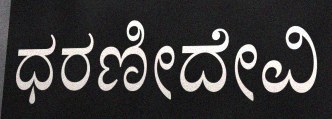
ಧರಣೀದೇವಿ